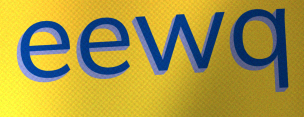
eewq